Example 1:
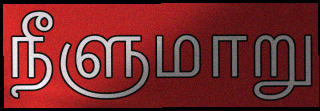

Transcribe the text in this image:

நீளுமாறு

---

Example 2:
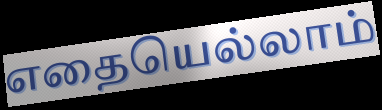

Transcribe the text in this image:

எதையெல்லாம்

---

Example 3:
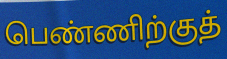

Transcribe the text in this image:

பெண்ணிற்குத்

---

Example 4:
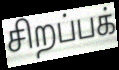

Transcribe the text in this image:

சிறப்பக்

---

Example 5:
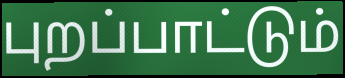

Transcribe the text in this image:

புறப்பாட்டும்